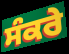
ਸੰਕਰੇ